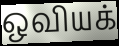
ஒவியக்